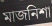
মাজনিশা